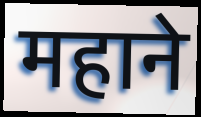
महाने